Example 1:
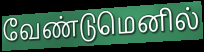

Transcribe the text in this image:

வேண்டுமெனில்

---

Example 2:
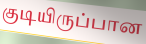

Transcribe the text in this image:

குடியிருப்பான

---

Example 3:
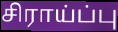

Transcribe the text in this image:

சிராய்ப்பு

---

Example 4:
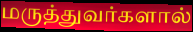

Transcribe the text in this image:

மருத்துவர்களால்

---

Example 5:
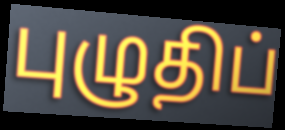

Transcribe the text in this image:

புழுதிப்